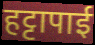
हट्टापाई